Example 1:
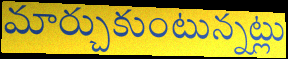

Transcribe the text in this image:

మార్చుకుంటున్నట్లు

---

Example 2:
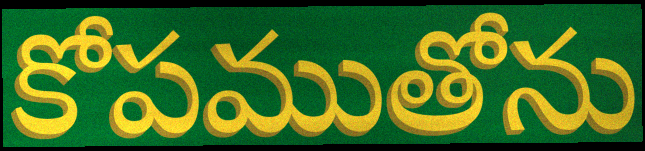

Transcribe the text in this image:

కోపముతోను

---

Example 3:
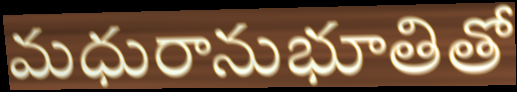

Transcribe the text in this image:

మధురానుభూతితో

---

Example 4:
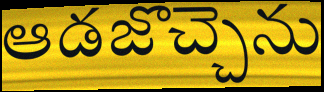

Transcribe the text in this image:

ఆడజొచ్చెను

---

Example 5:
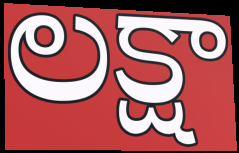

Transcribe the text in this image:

లక్షా